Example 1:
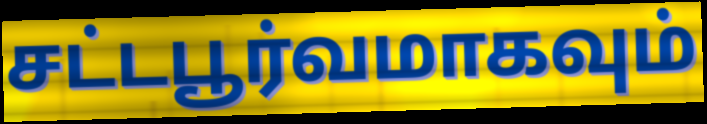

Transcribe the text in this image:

சட்டபூர்வமாகவும்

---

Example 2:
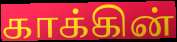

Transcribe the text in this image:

காக்கின்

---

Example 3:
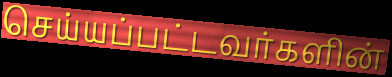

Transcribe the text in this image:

செய்யப்பட்டவர்களின்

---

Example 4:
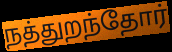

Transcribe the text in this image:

நத்துறந்தோர்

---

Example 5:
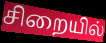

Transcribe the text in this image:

சிறையில்